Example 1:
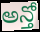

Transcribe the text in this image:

అన్తో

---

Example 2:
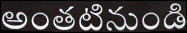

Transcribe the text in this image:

అంతటినుండి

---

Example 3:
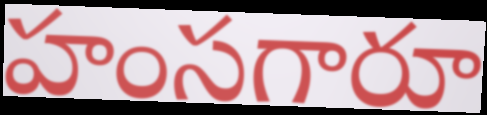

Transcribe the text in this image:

హంసగారూ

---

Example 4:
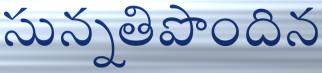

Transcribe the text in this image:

సున్నతిపొందిన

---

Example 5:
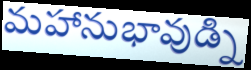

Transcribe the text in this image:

మహానుభావుడ్ని